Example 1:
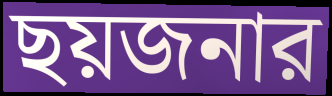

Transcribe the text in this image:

ছয়জনার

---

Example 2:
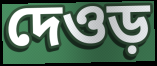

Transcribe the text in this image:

দেওড়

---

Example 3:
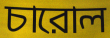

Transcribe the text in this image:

চারোল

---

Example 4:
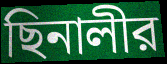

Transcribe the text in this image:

ছিনালীর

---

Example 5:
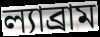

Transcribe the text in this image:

ল্যাব্রাম